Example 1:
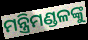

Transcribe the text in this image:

ମନ୍ତ୍ରିମଣ୍ଡଳଙ୍କୁ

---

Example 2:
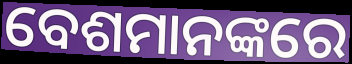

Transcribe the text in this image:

ବେଶମାନଙ୍କରେ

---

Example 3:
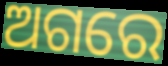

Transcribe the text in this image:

ଅଗରେ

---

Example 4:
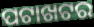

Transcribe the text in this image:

ପଟାଖଟର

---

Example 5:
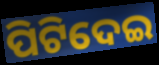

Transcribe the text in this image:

ପିଟିଦେଇ